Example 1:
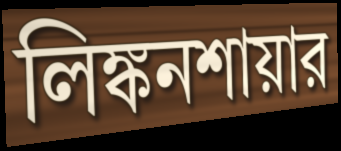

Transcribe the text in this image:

লিঙ্কনশায়ার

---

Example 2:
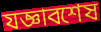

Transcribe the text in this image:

যজ্ঞাবশেষ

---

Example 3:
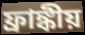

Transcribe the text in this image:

ফ্রাঙ্কীয়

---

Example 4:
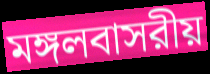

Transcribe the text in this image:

মঙ্গলবাসরীয়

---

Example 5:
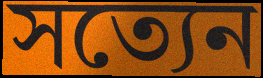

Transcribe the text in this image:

সত্যেন